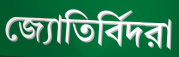
জ্যোতির্বিদরা